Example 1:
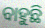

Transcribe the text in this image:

ବାହୁଛି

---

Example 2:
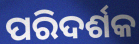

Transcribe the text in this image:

ପରିଦର୍ଶକ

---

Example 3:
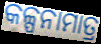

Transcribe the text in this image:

କଳ୍ପନାମାତ୍ର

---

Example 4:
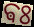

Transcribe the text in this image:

ଵଃ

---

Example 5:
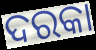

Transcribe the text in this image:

ଦରକା